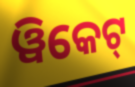
ୱିକେଟ୍